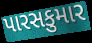
પારસકુમાર